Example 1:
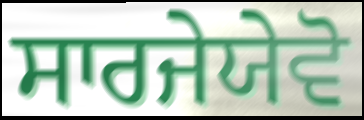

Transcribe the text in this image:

ਸਾਰਜੇਯੇਵੋ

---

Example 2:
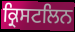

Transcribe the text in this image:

ਕ੍ਰਿਸਟਲਿਨ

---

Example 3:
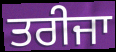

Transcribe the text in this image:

ਤਰੀਜਾ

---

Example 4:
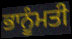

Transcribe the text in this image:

ਭਾਨੂੰਮਤੀ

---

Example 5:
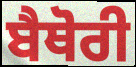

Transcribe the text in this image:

ਬੈਥੋਰੀ